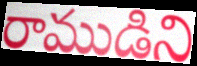
రాముడిని